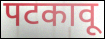
पटकावू